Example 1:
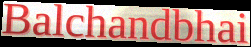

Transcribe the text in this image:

Balchandbhai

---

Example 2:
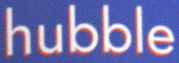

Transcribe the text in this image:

hubble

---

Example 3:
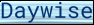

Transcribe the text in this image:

Daywise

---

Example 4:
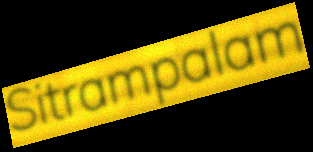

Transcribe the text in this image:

Sitrampalam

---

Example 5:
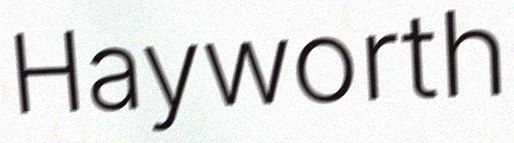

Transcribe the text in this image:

Hayworth